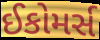
ઈકોમર્સ